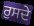
ਰੁਸਦੇ